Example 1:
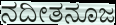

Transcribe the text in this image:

ನದೀತನೂಜ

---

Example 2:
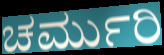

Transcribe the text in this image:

ಚರ್ಮುರಿ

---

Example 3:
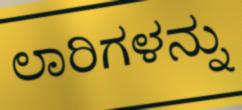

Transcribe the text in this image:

ಲಾರಿಗಳನ್ನು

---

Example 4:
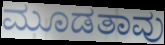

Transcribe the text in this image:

ಮೂಡತಾವು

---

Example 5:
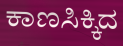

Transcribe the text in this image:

ಕಾಣಸಿಕ್ಕಿದ